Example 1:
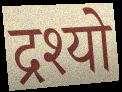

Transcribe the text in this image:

द्रश्यो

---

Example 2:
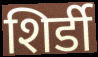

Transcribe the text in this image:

शिर्डी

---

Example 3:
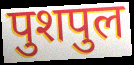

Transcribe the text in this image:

पुशपुल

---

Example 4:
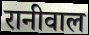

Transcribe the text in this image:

रानीवाल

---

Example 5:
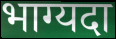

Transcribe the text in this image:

भाग्यदा